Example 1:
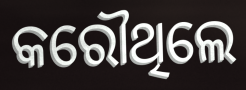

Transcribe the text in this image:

କରୌଥିଲେ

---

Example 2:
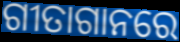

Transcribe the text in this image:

ଗୀତାଗାନରେ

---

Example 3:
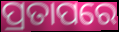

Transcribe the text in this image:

ପ୍ରତାପରେ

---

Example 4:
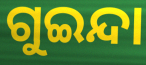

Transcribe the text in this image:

ଗୁଇନ୍ଦା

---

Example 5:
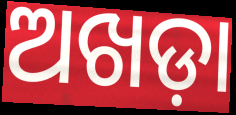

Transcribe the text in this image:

ଅଖଡ଼ା